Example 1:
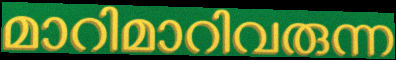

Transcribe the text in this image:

മാറിമാറിവരുന്ന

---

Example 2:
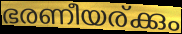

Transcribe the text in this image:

ഭരണീയര്ക്കും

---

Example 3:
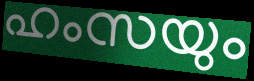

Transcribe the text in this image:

ഹംസയും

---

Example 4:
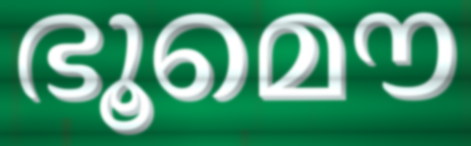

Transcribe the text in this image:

ഭൂമൌ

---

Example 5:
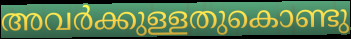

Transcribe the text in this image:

അവർക്കുള്ളതുകൊണ്ടു